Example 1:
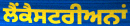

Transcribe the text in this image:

ਲੈਂਕੈਸਟਰੀਅਨਾਂ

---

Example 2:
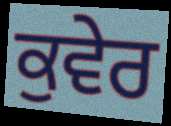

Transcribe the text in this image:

ਕੁਵੇਰ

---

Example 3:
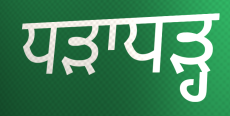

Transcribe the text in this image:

ਧੜਾਧੜ੍ਹ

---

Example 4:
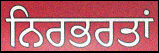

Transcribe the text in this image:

ਨਿਰਭਰਤਾਂ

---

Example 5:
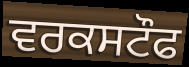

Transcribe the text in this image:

ਵਰਕਸਟੌਫ